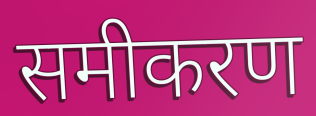
समीकरण